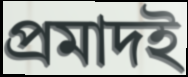
প্রমাদই